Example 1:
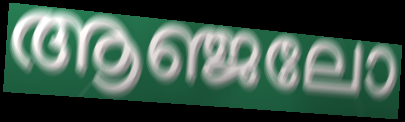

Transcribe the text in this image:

ആഞ്ജലോ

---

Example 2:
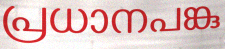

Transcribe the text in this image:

പ്രധാനപങ്കു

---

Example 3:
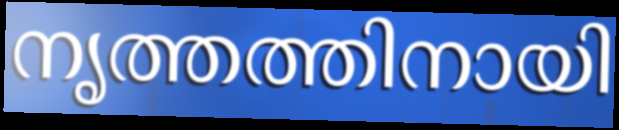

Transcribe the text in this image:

നൃത്തത്തിനായി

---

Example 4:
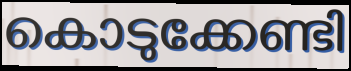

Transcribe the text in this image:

കൊടുക്കേണ്ടി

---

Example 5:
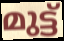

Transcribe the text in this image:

മുട്ട്